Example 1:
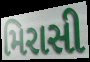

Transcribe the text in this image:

મિરાસી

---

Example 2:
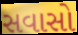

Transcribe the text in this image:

સવાસો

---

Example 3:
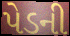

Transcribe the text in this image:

પેડની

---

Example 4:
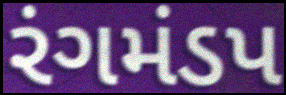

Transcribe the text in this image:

રંગમંડપ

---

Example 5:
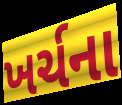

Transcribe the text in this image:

ખર્ચના